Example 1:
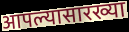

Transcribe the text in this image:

आपल्यासारख्या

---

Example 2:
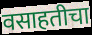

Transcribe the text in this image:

वसाहतीचा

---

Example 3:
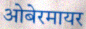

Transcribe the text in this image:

ओबेरमायर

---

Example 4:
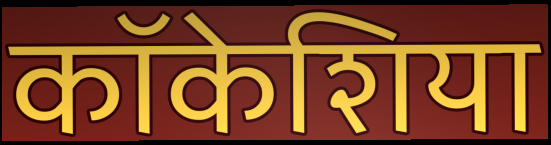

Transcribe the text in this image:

कॉकेशिया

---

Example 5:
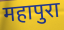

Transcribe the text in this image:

महापुरा